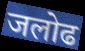
जलोढ